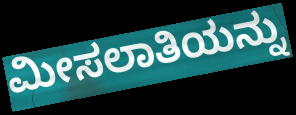
ಮೀಸಲಾತಿಯನ್ನು